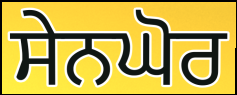
ਸੇਨਘੋਰ